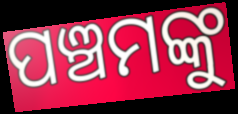
ପଞ୍ଚମଙ୍କୁ